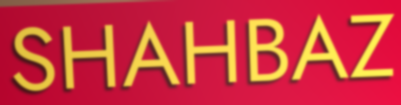
SHAHBAZ